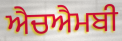
ਐਚਐਮਬੀ